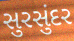
સુરસુંદર